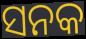
ସନକ